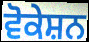
ਵੋਕੇਸ਼ਨ